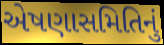
એષણાસમિતિનું